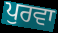
ਪੁਰਵਾ